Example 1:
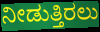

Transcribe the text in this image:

ನೀಡುತ್ತಿರಲು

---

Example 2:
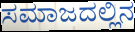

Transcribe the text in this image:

ಸಮಾಜದಲ್ಲಿನ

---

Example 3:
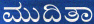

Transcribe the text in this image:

ಮುದಿತಾ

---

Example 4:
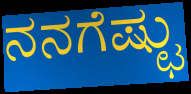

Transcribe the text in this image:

ನನಗೆಷ್ಟು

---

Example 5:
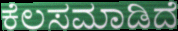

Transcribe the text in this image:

ಕೆಲಸಮಾಡಿದೆ